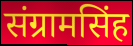
संग्रामसिंह